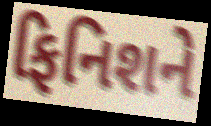
ફિનિશને